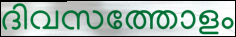
ദിവസത്തോളം